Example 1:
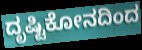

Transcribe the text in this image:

ದೃಷ್ಟಿಕೋನದಿಂದ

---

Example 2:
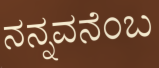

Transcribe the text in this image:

ನನ್ನವನೆಂಬ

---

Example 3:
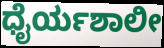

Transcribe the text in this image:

ಧೈರ್ಯಶಾಲೀ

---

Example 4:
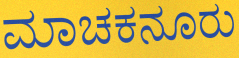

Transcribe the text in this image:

ಮಾಚಕನೂರು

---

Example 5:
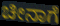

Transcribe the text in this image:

ಚೀನಾಗೆ